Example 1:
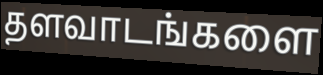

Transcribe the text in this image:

தளவாடங்களை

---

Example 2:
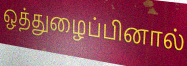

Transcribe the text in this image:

ஒத்துழைப்பினால்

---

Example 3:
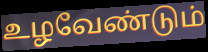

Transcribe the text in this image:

உழவேண்டும்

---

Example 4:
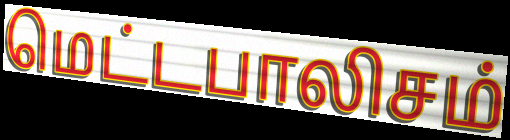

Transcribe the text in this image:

மெட்டபாலிசம்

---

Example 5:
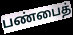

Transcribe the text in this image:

பண்பைத்